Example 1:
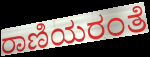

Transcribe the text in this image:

ರಾಣಿಯರಂತೆ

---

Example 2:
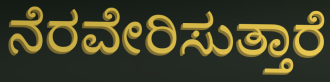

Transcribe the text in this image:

ನೆರವೇರಿಸುತ್ತಾರೆ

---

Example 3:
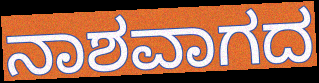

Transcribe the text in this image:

ನಾಶವಾಗದ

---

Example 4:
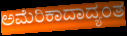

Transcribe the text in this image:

ಅಮೆರಿಕಾದಾದ್ಯಂತ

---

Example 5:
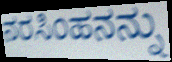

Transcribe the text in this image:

ನರಸಿಂಹನನ್ನು